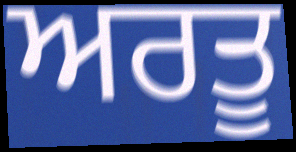
ਅਰਤੂ